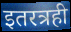
इतरत्रही